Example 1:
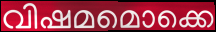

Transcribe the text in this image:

വിഷമമൊക്കെ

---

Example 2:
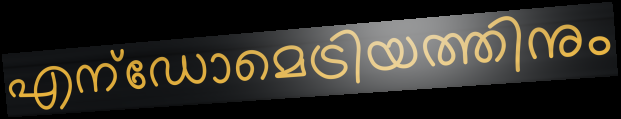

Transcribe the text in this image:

എന്ഡോമെട്രിയത്തിനും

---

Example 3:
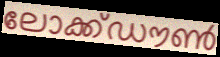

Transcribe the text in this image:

ലോക്ക്ഡൗൺ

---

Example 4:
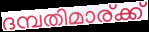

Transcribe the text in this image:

ദമ്പതിമാര്ക്ക്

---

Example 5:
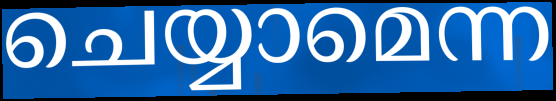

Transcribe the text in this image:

ചെയ്യാമെന്ന